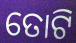
ତୋଟି